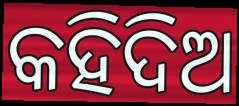
କହିଦିଅ